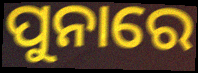
ପୁନାରେ